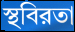
স্থবিরতা